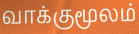
வாக்குமூலம்